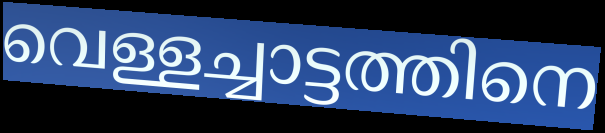
വെള്ളച്ചാട്ടത്തിനെ